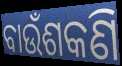
ବାଉଁଶକଣି